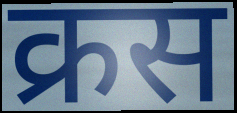
क्रस